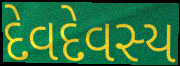
દેવદેવસ્ય